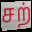
சற்